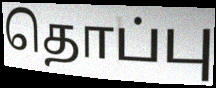
தொப்பு